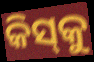
କିସ୍‌କୁ